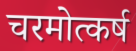
चरमोत्कर्ष